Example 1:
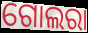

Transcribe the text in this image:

ଗୋଲରା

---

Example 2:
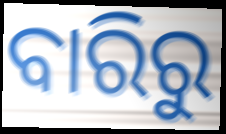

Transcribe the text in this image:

ବାରିରୁ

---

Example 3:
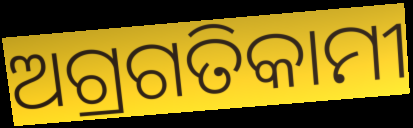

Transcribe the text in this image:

ଅଗ୍ରଗତିକାମୀ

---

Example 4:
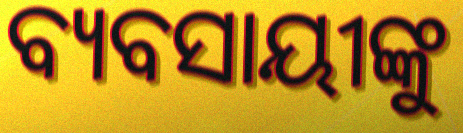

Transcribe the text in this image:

ବ୍ୟବସାୟୀଙ୍କୁ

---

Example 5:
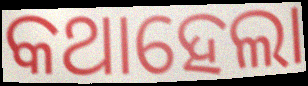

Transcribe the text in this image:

କଥାହେଲା